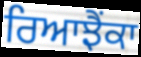
ਰਿਆਝੈਂਕਾ